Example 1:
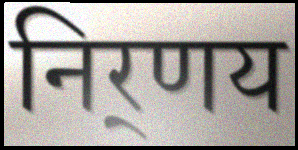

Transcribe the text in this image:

निर्णय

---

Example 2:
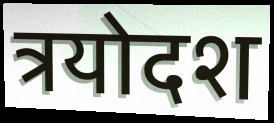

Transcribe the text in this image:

त्रयोदश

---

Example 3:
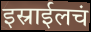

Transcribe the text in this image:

इस्राईलचं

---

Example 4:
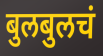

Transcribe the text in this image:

बुलबुलचं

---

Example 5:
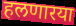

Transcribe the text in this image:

हलणारया